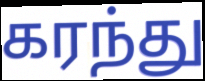
கரந்து